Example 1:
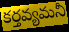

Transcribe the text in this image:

కర్తవ్యమనీ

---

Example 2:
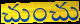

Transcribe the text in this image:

చుంచు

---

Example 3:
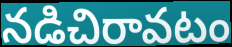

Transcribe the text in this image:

నడిచిరావటం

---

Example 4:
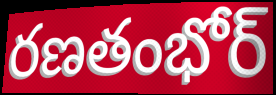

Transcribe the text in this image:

రణతంభోర్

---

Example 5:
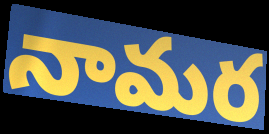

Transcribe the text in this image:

నామర